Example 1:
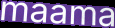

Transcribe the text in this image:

maama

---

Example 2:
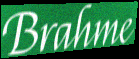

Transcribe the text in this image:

Brahme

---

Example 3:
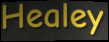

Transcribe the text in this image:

Healey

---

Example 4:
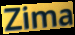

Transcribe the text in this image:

Zima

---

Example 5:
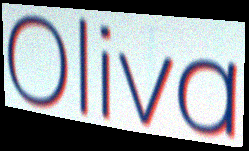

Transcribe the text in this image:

Oliva